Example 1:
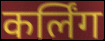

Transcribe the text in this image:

कर्लिंग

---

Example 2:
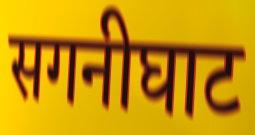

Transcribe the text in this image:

सगनीघाट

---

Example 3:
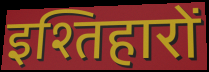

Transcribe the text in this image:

इश्तिहारों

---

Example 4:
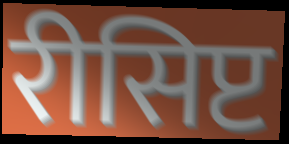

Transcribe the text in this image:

रीसिप्ट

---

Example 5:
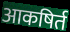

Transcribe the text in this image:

आकषिर्त